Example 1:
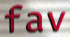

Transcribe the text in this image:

fav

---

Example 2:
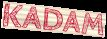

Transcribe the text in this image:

KADAM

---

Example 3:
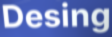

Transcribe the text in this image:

Desing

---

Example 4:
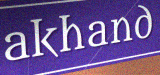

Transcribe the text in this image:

akhand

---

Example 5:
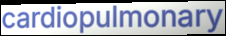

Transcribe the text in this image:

cardiopulmonary